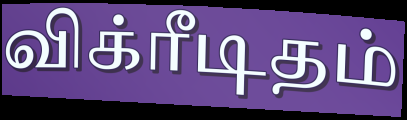
விக்ரீடிதம்